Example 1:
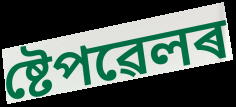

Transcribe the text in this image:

ষ্টেপৱেলৰ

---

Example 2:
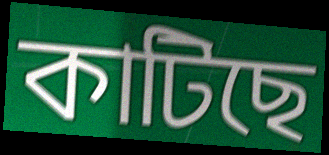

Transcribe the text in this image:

কাটিছে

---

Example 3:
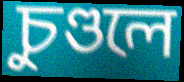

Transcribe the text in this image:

চুণ্ডলে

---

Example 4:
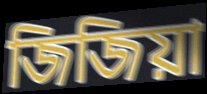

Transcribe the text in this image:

জিজিয়া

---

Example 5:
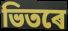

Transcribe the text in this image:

ভিতৰে